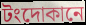
টংদোকানে